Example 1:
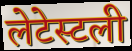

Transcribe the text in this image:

लेटेस्टली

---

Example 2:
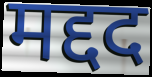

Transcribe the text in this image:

मद्दद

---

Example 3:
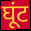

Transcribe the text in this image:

घूंट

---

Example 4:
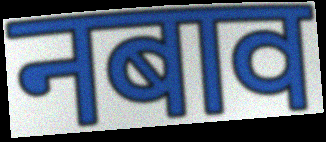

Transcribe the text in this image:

नबाव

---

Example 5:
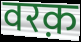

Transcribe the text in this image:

वरक़